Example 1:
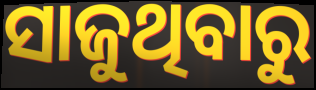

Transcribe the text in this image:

ସାଜୁଥିବାରୁ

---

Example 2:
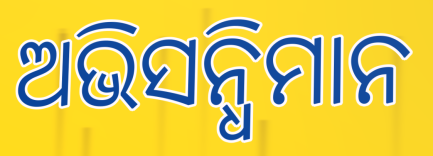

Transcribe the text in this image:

ଅଭିସନ୍ଧିମାନ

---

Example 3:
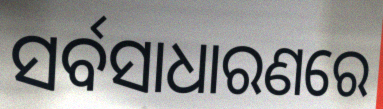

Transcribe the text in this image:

ସର୍ବସାଧାରଣରେ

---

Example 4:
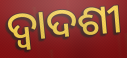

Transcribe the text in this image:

ଦ୍ବାଦଶୀ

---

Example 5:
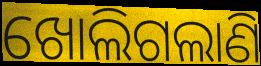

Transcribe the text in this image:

ଖୋଲିଗଲାଣି